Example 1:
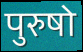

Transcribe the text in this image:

पुरुषो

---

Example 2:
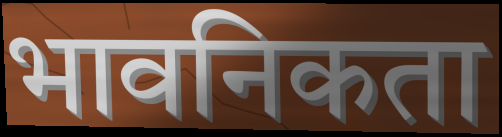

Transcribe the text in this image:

भावनिकता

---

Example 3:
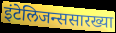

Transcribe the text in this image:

इंटेलिजन्ससारख्या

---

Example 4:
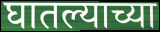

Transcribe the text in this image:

घातल्याच्या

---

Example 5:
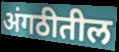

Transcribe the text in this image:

अंगठीतील